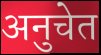
अनुचेत